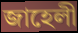
জাহেলী